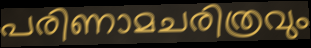
പരിണാമചരിത്രവും